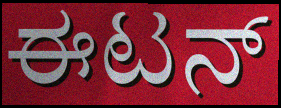
ಈಟನ್